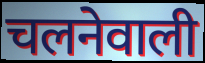
चलनेवाली